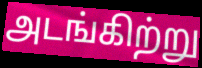
அடங்கிற்று